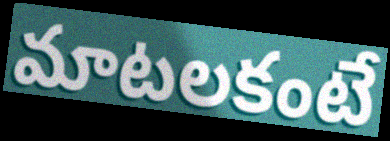
మాటలకంటే